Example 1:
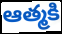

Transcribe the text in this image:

ఆత్మకి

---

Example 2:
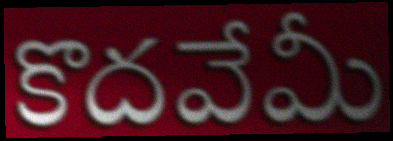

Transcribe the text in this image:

కొదవేమీ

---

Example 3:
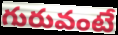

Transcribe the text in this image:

గురువంటే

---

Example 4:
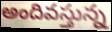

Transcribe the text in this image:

అందివస్తున్న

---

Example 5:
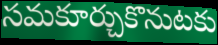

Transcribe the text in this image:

సమకూర్చుకొనుటకు